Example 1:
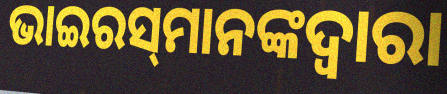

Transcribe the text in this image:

ଭାଇରସ୍‌ମାନଙ୍କଦ୍ୱାରା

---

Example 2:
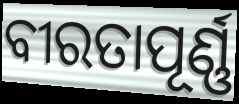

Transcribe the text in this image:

ବୀରତାପୂର୍ଣ୍ଣ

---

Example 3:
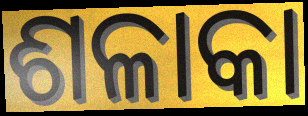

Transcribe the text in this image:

ଶଳାକା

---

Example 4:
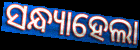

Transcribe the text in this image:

ସନ୍ଧ୍ୟାହେଲା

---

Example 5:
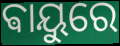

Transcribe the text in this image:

ଵାୟୁରେ